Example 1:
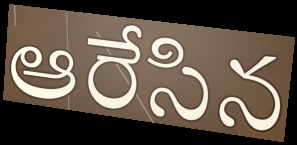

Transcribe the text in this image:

ఆరేసిన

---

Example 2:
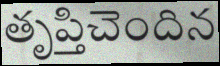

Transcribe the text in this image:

తృప్తిచెందిన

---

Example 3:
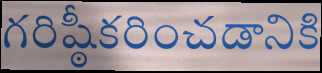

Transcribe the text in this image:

గరిష్ఠీకరించడానికి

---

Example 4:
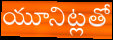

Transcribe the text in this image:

యూనిట్లతో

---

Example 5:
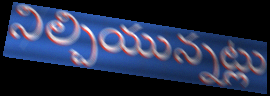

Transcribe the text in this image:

నిల్చియున్నట్లు